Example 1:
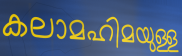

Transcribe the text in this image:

കലാമഹിമയുള്ള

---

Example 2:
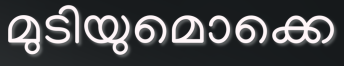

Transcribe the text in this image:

മുടിയുമൊക്കെ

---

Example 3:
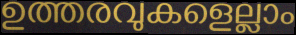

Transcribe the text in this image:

ഉത്തരവുകളെല്ലാം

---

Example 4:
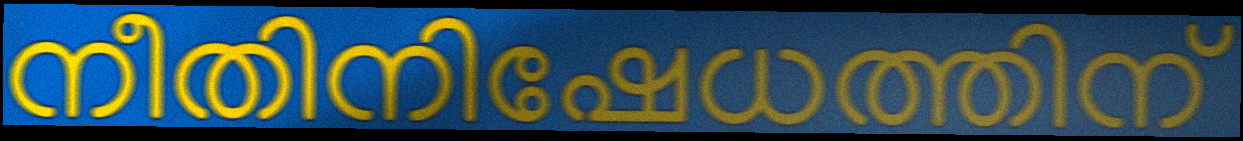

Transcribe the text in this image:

നീതിനിഷേധത്തിന്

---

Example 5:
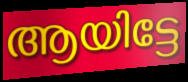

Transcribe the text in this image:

ആയിട്ടേ